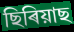
ছিৰিয়াছ